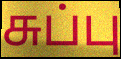
சுப்பு